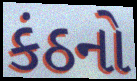
કંઠનો